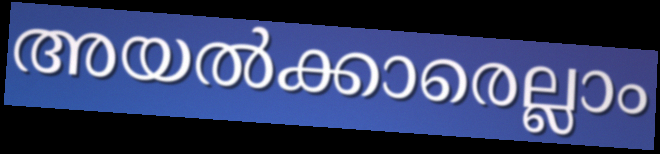
അയൽക്കാരെല്ലാം